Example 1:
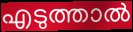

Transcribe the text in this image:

എടുത്താൽ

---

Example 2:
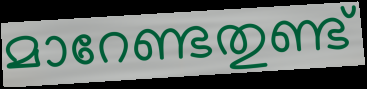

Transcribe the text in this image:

മാറേണ്ടതുണ്ട്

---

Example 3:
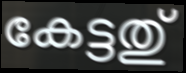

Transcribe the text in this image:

കേട്ടതു്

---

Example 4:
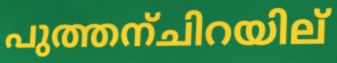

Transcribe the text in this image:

പുത്തന്ചിറയില്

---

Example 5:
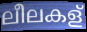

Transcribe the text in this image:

ലീലകള്